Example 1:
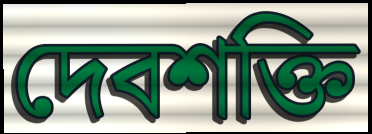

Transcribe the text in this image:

দেবশক্তি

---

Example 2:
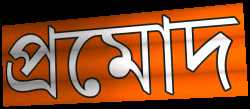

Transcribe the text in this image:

প্রমোদ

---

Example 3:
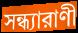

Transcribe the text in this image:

সন্ধ্যারাণী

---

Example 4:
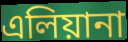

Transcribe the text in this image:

এলিয়ানা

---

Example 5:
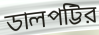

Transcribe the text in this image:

ডালপট্টির